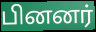
பினனர்